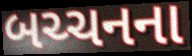
બચ્ચનના